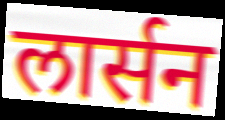
लार्सन